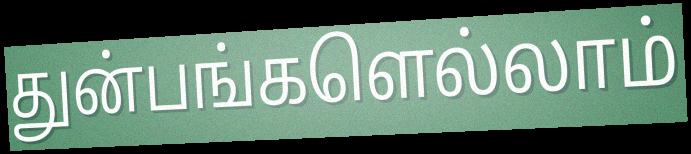
துன்பங்களெல்லாம்